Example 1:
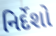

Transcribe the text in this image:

નિર્દેશો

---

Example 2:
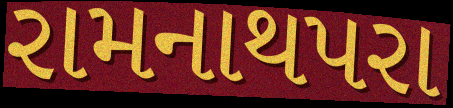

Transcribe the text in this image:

રામનાથપરા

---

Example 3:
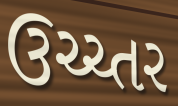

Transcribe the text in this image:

ઉચ્ચ્તર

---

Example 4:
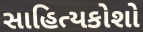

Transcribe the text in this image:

સાહિત્યકોશો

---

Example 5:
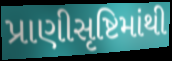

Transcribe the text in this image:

પ્રાણીસૃષ્ટિમાંથી